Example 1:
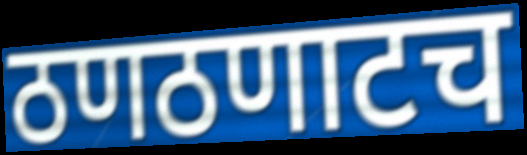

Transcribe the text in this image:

ठणठणाटच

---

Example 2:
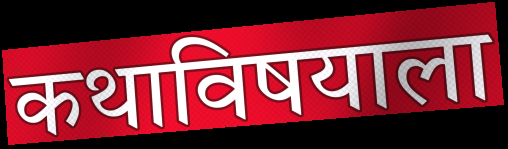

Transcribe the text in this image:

कथाविषयाला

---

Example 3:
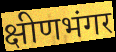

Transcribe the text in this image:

क्षीणभंगर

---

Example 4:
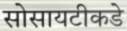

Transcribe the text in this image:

सोसायटीकडे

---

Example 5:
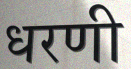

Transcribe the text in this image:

धरणी